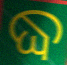
ଦ୍ଧ